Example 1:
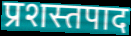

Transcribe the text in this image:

प्रशस्तपाद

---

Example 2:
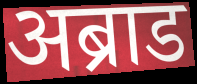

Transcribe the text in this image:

अब्राड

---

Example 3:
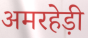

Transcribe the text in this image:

अमरहेड़ी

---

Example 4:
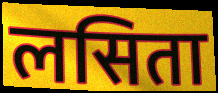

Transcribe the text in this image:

लसिता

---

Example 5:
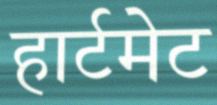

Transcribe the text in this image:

हार्टमेट